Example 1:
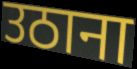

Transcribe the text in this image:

उठाना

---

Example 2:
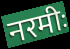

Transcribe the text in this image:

नरमीः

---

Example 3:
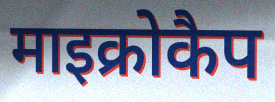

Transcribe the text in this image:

माइक्रोकैप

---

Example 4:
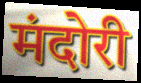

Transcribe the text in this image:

मंदोरी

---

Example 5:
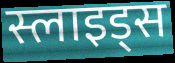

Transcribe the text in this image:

स्लाइड्स